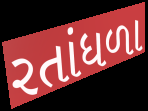
રતાંધળા